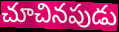
చూచినపుడు